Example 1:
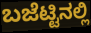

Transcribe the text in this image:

ಬಜೆಟ್ಟಿನಲ್ಲಿ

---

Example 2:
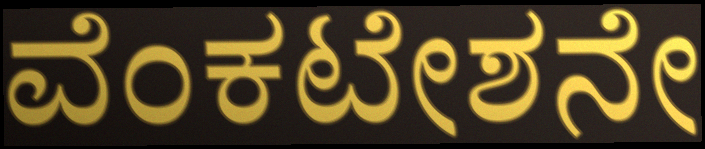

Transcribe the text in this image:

ವೆಂಕಟೇಶನೇ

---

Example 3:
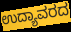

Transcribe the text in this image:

ಉದ್ಯಾವರದ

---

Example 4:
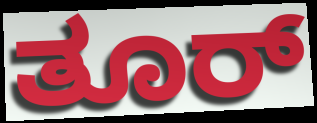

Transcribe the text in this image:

ತೂರ್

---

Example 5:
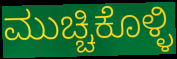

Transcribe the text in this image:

ಮುಚ್ಚಿಕೊಳ್ಳಿ